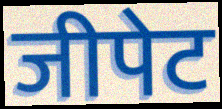
जीपेट